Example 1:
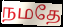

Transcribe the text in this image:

நமதே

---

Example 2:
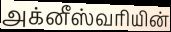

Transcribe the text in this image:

அக்னீஸ்வரியின்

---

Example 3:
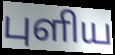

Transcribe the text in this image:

புளிய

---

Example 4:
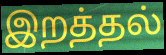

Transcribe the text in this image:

இறத்தல்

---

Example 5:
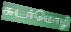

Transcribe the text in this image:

சுடர்மொழி